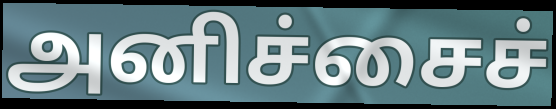
அனிச்சைச்